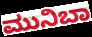
ಮುನಿಬಾ